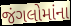
જંગલોમાંના